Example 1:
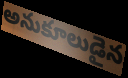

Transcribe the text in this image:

అనుకూలుడైన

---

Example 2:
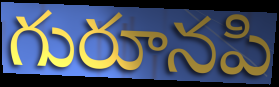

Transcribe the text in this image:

గురూనపి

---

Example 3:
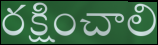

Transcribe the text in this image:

రక్షించాలి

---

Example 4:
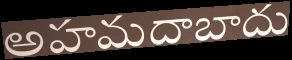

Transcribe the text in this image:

అహమదాబాదు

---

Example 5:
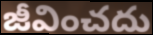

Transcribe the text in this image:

జీవించదు